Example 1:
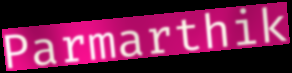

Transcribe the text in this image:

Parmarthik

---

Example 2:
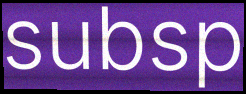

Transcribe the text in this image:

subsp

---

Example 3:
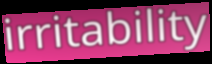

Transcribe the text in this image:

irritability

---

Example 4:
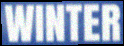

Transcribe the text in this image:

WINTER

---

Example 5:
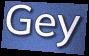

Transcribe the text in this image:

Gey